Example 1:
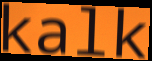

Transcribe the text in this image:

kalk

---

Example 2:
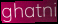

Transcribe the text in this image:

ghatni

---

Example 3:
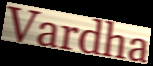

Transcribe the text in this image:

Vardha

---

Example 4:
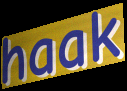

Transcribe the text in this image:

haak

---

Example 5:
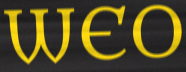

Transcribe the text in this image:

WEO